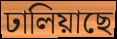
ঢালিয়াছে